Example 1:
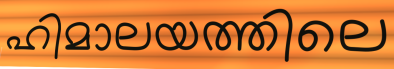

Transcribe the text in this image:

ഹിമാലയത്തിലെ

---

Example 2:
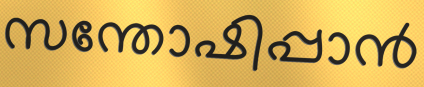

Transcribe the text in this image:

സന്തോഷിപ്പാൻ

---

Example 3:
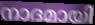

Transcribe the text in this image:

നാദമായി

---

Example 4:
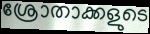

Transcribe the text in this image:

ശ്രോതാക്കളുടെ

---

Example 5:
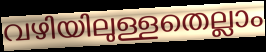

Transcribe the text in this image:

വഴിയിലുള്ളതെല്ലാം